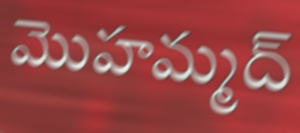
మొహమ్మద్